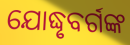
ଯୋଦ୍ଧୃବର୍ଗଙ୍କ